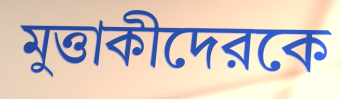
মুত্তাকীদেরকে